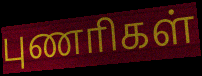
புணரிகள்